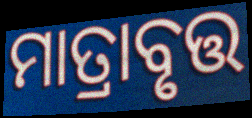
ମାତ୍ରାବୃତ୍ତ